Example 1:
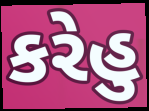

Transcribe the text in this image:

કરેહુ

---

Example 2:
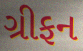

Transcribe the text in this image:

ગ્રીફન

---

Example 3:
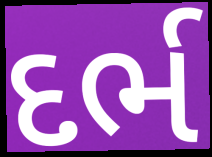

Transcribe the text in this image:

દર્ભ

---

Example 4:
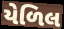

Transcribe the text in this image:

યેળિલ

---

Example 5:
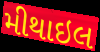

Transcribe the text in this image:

મીથાઇલ